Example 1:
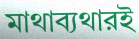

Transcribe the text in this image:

মাথাব্যথারই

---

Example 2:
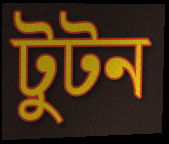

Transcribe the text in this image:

টুটন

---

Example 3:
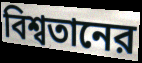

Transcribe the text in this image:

বিশ্বতানের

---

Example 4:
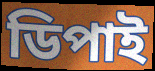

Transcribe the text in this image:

ডিপাই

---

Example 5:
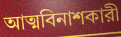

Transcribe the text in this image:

আত্মবিনাশকারী